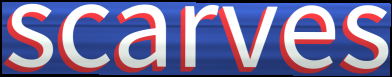
scarves